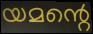
യമന്റെ